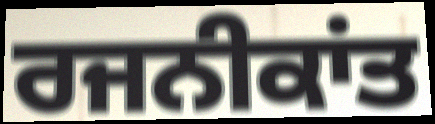
ਰਜਨੀਕਾਂਤ